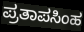
ಪ್ರತಾಪಸಿಂಹ